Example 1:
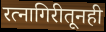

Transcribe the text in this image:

रत्नागिरीतूनही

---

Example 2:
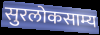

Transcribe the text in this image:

सुरलोकसाम्य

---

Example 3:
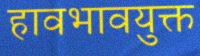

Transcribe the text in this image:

हावभावयुक्त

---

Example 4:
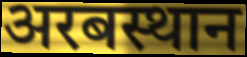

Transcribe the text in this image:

अरबस्थान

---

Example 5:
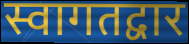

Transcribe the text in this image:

स्वागतद्वार